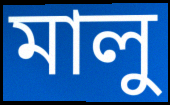
মালু